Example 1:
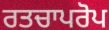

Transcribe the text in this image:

ਰਤਚਾਪਰੋਪ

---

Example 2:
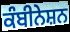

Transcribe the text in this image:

ਕੰਬੀਨੇਸ਼ਨ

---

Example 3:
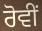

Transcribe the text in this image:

ਰੋਵੀਂ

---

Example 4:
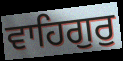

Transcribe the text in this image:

ਵਾਹਿਗੁਰੁ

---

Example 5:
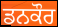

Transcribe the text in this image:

ਡਨਕੌਰ